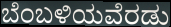
ಬೆಂಬಳಿಯವೆರಡು